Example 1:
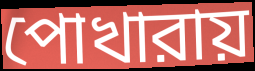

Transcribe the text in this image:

পোখারায়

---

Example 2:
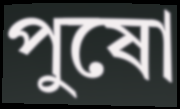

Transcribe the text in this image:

পুষো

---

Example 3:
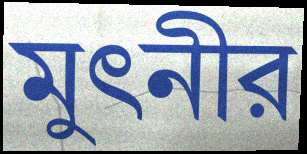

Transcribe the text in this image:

মুৎনীর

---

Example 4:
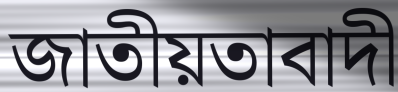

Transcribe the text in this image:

জাতীয়তাবাদী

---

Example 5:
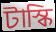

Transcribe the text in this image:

টাস্কি